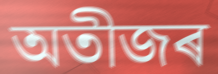
অতীজৰ